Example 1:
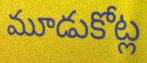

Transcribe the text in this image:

మూడుకోట్ల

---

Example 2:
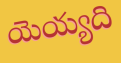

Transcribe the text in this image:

యెయ్యది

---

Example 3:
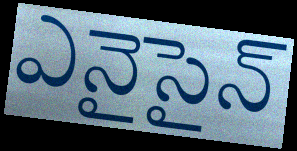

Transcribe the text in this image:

ఎనైసైన్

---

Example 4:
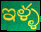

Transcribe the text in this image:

ఇళ్ళ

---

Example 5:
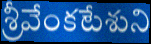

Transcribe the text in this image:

శ్రీవేంకటేశుని